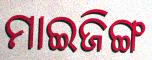
ମାଇଜିଙ୍ଗ